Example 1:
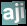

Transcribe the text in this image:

aji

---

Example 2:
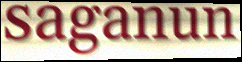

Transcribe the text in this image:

saganun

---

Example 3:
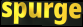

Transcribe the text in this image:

spurge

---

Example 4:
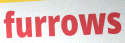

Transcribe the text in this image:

furrows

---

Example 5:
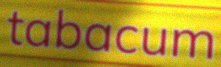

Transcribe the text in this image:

tabacum